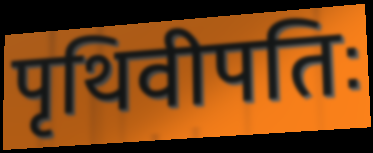
पृथिवीपतिः